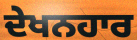
ਦੇਖਨਹਾਰ